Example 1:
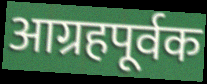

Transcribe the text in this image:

आग्रहपूर्वक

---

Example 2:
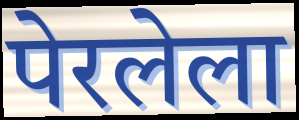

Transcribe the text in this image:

पेरलेला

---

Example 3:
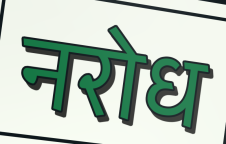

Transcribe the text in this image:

नरोध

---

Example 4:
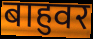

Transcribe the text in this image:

बाहुवर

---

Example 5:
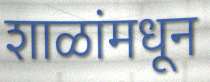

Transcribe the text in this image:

शाळांमधून